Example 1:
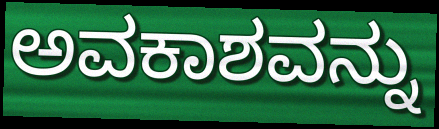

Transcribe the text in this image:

ಅವಕಾಶವನ್ನು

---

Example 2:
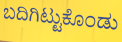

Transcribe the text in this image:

ಬದಿಗಿಟ್ಟುಕೊಂಡು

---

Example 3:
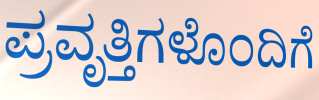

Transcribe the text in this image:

ಪ್ರವೃತ್ತಿಗಳೊಂದಿಗೆ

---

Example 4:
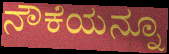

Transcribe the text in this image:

ನೌಕೆಯನ್ನೂ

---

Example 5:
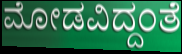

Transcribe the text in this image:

ಮೋಡವಿದ್ದಂತೆ